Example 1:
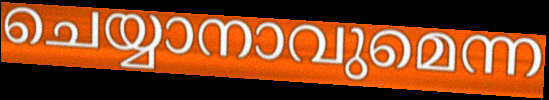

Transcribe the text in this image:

ചെയ്യാനാവുമെന്ന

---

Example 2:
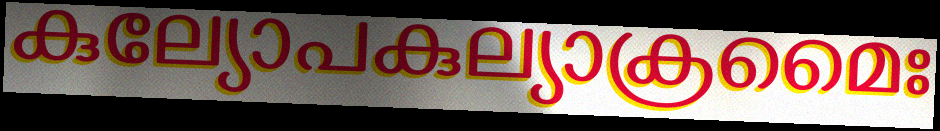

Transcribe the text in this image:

കുല്യോപകുല്യാക്രമൈഃ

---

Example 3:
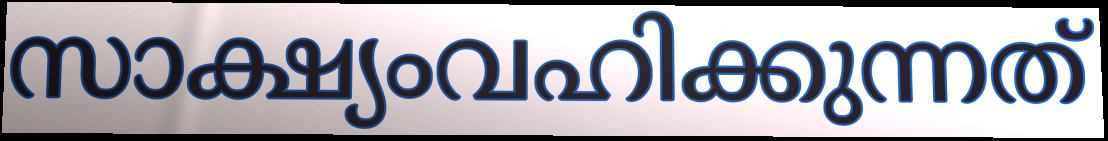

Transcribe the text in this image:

സാക്ഷ്യംവഹിക്കുന്നത്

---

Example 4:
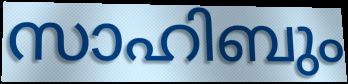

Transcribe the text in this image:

സാഹിബും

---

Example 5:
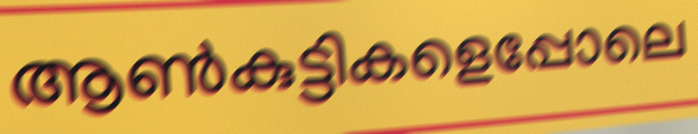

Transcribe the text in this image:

ആൺകുട്ടികളെപ്പോലെ